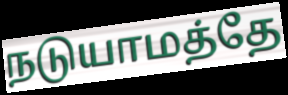
நடுயாமத்தே